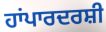
ਹਾਂਪਾਰਦਰਸ਼ੀ